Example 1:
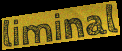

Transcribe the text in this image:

liminal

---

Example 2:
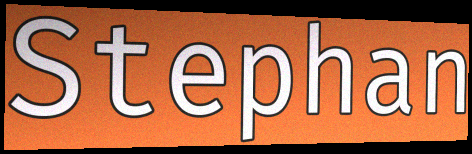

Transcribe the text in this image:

Stephan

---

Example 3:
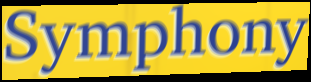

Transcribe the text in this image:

Symphony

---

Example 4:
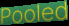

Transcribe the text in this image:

Pooled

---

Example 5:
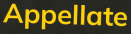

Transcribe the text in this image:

Appellate